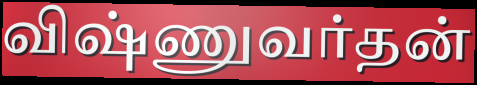
விஷ்ணுவர்தன்